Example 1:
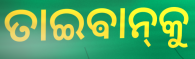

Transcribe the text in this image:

ତାଇଵାନ୍‌କୁ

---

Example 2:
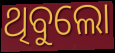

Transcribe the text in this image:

ଥିବୁଲୋ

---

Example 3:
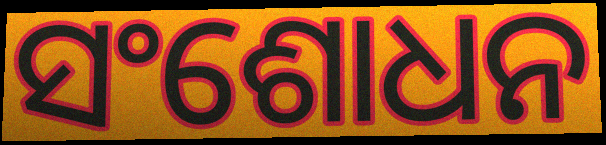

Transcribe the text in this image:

ସଂଶୋଧନ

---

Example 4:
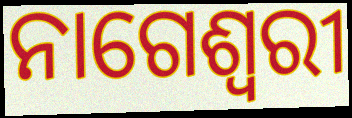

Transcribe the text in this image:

ନାଗେଶ୍ୱରୀ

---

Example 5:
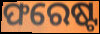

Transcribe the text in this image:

ଫରେଷ୍ଟ